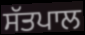
ਸੱਤਪਾਲ